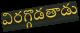
విరగ్గొడతాడు